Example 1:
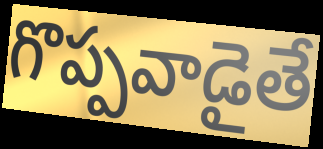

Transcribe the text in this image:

గొప్పవాడైతే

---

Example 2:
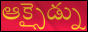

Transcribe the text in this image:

ఆక్సైడ్ను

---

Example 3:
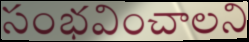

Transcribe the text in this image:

సంభవించాలని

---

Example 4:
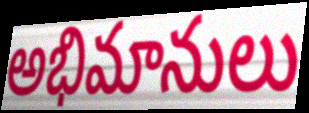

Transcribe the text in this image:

అభిమానులు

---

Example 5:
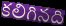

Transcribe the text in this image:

కలిగినది